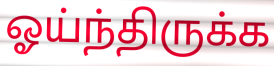
ஓய்ந்திருக்க